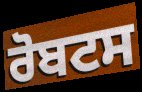
ਰੋਬਟਸ